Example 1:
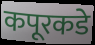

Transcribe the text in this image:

कपूरकडे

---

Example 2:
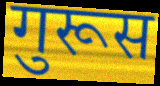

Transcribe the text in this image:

गुरूस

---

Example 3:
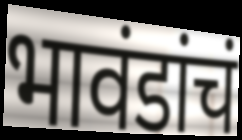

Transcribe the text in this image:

भावंडांचं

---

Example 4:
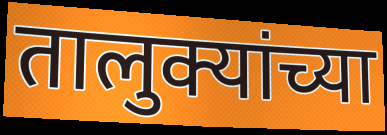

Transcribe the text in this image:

तालुक्यांच्या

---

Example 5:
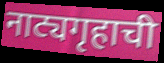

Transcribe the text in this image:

नाट्यगृहाची